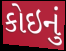
કોઇનું